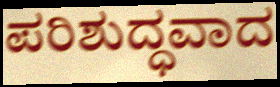
ಪರಿಶುದ್ಧವಾದ